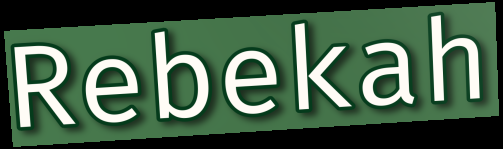
Rebekah